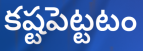
కష్టపెట్టటం